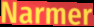
Narmer